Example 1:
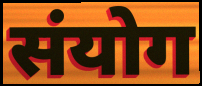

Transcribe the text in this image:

संयोग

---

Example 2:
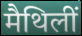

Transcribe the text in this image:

मैथिलीं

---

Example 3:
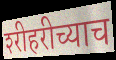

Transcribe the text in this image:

श्रीहरीच्याच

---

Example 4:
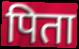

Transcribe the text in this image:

पिता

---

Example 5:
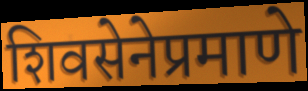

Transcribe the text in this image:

शिवसेनेप्रमाणे